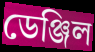
ডেঞ্জিল